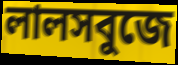
লালসবুজে